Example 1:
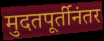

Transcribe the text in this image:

मुदतपूर्तीनंतर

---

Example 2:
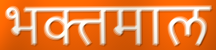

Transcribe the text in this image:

भक्तमाल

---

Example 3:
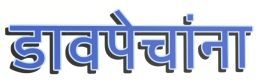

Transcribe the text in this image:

डावपेचांना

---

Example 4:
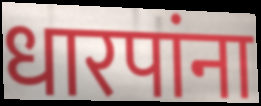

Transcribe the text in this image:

धारपांना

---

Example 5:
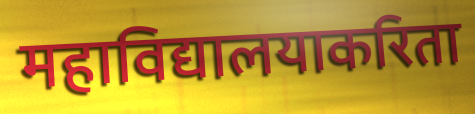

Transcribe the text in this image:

महाविद्यालयाकरिता